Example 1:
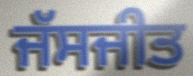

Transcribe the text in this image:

ਜੱਸਜੀਤ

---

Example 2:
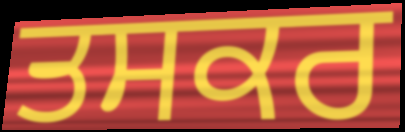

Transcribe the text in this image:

ਤਸਕਰ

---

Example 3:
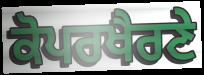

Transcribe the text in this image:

ਕੋਪਰਖੈਰਣੇ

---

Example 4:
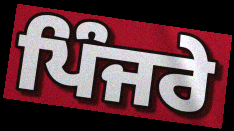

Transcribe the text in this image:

ਪਿੰਜਰੇ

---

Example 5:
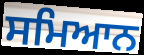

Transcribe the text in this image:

ਸਮਿਆਨ